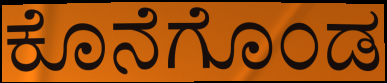
ಕೊನೆಗೊಂಡ